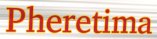
Pheretima